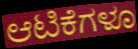
ಆಟಿಕೆಗಳೂ